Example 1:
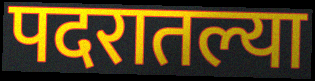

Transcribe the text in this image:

पदरातल्या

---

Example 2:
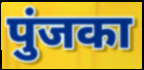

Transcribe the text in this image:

पुंजका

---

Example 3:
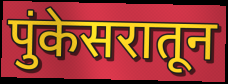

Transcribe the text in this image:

पुंकेसरातून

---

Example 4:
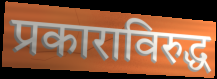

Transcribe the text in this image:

प्रकाराविरुद्ध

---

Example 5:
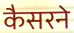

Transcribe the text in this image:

कैसरने